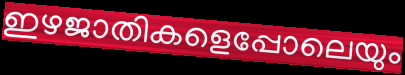
ഇഴജാതികളെപ്പോലെയും